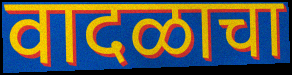
वादळाचा